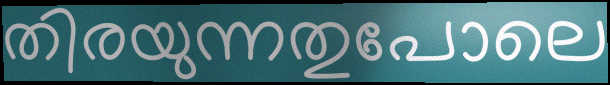
തിരയുന്നതുപോലെ